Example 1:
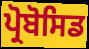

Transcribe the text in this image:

ਪ੍ਰੋਬੋਸਿਡ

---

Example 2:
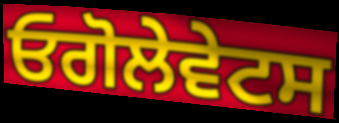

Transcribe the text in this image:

ਓਗੋਲੇਵੇਟਸ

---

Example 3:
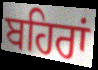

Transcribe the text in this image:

ਬਹਿਰਾਂ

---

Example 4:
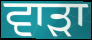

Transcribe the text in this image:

ਵਾੜਾ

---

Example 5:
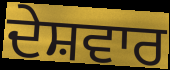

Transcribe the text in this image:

ਦੇਸ਼ਵਾਰ